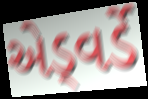
એડ્વર્ડે